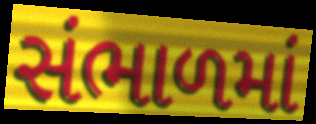
સંભાળમાં